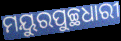
ମୟୁରପୁଚ୍ଛଧାରୀ